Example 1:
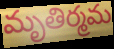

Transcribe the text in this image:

మృతిర్మమ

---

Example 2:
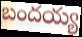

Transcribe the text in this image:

బందయ్య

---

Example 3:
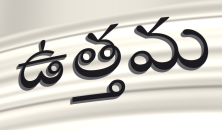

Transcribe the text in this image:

ఉత్తమ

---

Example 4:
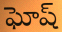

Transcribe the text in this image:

ఘోష్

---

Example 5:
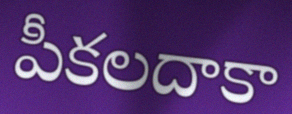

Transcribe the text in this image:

పీకలదాకా